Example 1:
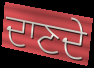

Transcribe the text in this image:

ਦਾਣਦੇ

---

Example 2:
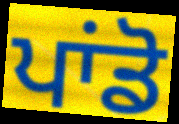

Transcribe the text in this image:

ਪਾਂਡੋ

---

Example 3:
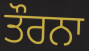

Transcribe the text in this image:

ਤੌਰਨਾ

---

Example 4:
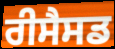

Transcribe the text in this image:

ਰੀਸੈਸਡ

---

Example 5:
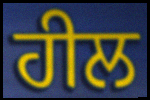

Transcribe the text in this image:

ਹੀਲ